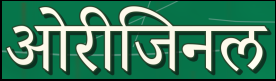
ओरीजिनल